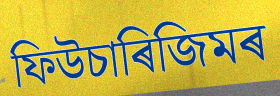
ফিউচাৰিজিমৰ